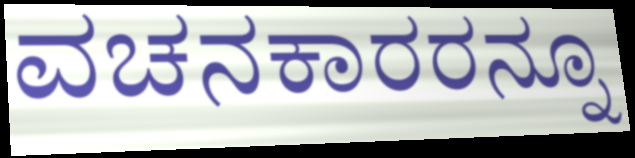
ವಚನಕಾರರನ್ನೂ